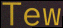
Tew